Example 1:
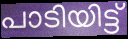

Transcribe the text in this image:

പാടിയിട്ട്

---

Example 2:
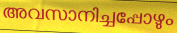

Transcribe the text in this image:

അവസാനിച്ചപ്പോഴും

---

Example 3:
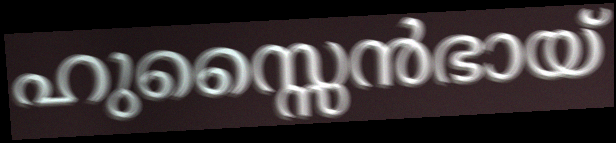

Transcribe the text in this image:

ഹുസ്സൈൻഭായ്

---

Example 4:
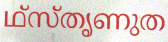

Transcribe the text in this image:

ഥ്സ്തൃണുത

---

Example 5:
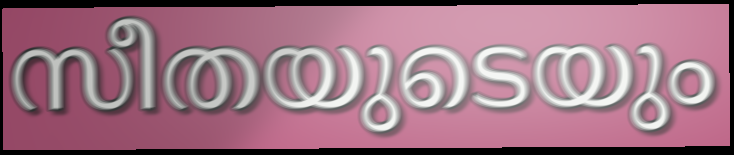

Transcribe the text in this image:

സീതയുടെയും